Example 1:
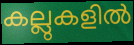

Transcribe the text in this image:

കല്ലുകളിൽ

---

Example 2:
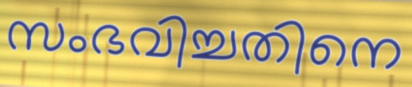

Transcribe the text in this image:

സംഭവിച്ചതിനെ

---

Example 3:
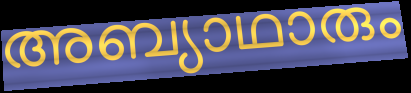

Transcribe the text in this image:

അബ്യാഥാരും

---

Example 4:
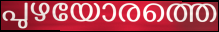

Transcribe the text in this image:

പുഴയോരത്തെ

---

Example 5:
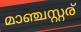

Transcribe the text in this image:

മാഞ്ചസ്റ്റര്